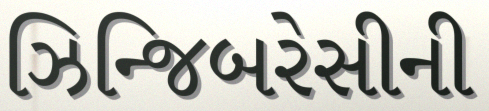
ઝિન્જિબરેસીની